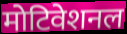
मोटिवेशनल